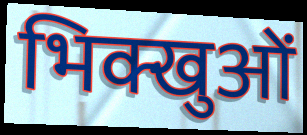
भिक्खुओं